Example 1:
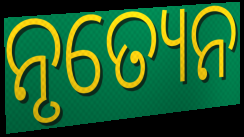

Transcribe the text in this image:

ନୃତ୍ୟେନ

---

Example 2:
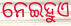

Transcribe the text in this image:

ନେଇହୁଏ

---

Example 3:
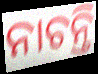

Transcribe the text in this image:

ନାଚନ୍ତି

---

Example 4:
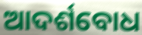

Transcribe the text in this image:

ଆଦର୍ଶବୋଧ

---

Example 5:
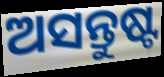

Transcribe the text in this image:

ଅସନ୍ତୁଷ୍ଟ